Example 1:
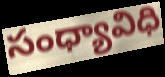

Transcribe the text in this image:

సంధ్యావిధి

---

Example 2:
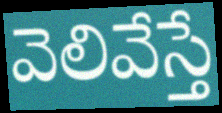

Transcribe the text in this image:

వెలివేస్తే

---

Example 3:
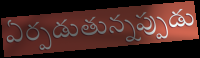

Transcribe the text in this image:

ఏర్పడుతున్నప్పుడు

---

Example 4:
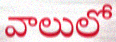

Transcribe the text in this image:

వాలులో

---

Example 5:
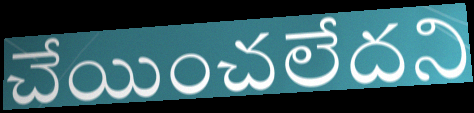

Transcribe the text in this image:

చేయించలేదని